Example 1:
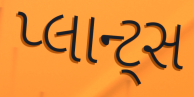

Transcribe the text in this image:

પ્લાન્ટ્સ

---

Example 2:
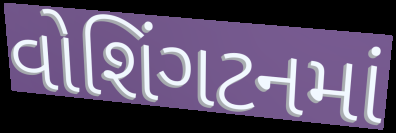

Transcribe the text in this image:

વોશિંગટનમાં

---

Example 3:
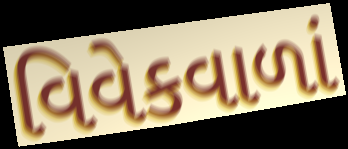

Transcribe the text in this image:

વિવેકવાળાં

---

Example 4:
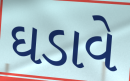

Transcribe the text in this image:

ઘડાવે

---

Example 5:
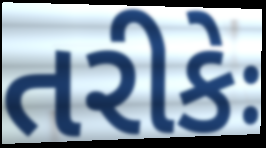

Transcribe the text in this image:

તરીકેઃ